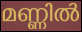
മണ്ണിൽ